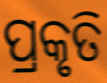
ପ୍ରକୃତି